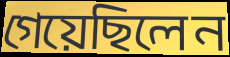
গেয়েছিলেন